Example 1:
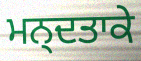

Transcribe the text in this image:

ਮਨ੍ਦਤਾਕੇ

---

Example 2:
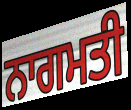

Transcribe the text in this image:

ਨਾਗਮਤੀ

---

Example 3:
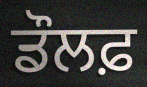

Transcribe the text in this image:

ਡੌਲਫ਼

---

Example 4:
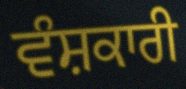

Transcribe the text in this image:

ਵੰਸ਼ਕਾਰੀ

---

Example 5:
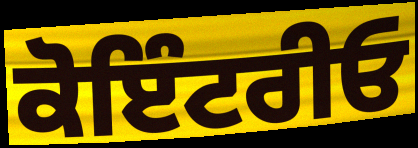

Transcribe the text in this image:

ਕੋਇੰਟਰੀਓ